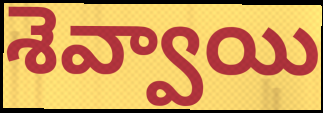
శెవ్వాయి